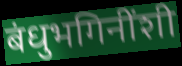
बंधुभगिनींशी